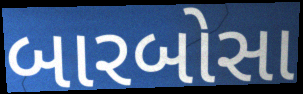
બારબોસા